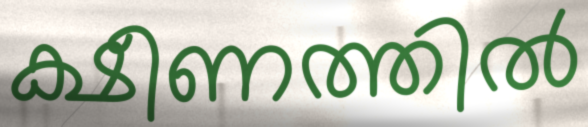
ക്ഷീണത്തിൽ